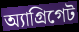
অ্যাগ্রিগেট